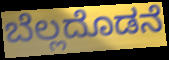
ಬೆಲ್ಲದೊಡನೆ